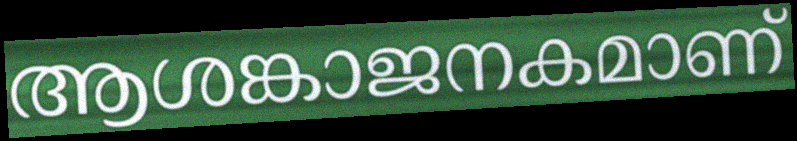
ആശങ്കാജനകമാണ്